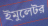
ইমুলেটর